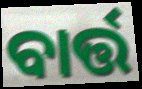
ବାର୍ତ୍ତ